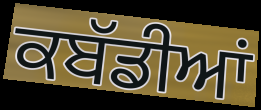
ਕਬੱਡੀਆਂ